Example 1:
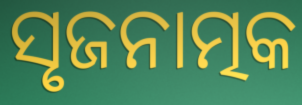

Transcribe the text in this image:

ସୃଜନାତ୍ମକ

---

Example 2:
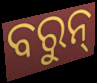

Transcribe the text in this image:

ବରୁନ୍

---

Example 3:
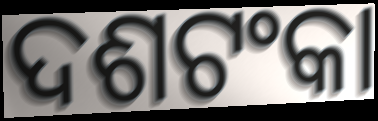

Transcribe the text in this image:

ଦଶଟଂକା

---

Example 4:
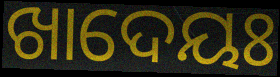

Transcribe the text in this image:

ଖାଦେୟଃ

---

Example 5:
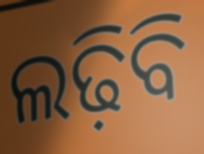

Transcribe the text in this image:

ଲଢ଼ିବି